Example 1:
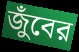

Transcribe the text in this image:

জুঁবের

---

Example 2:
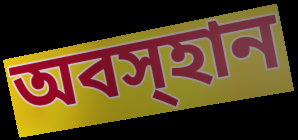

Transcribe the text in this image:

অবস্হান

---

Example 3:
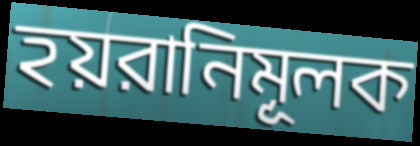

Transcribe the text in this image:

হয়রানিমূলক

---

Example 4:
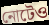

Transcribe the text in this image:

নোটেও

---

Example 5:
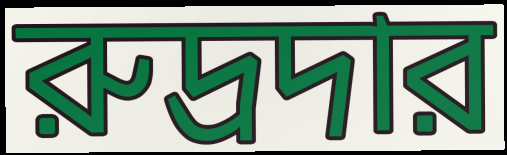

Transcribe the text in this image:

রুদ্রদার